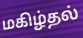
மகிழ்தல்